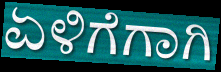
ಏಳಿಗೆಗಾಗಿ